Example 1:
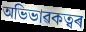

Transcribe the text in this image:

অভিভাৱকত্বৰ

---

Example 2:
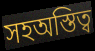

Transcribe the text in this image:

সহঅস্তিত্ব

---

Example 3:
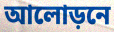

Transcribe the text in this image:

আলোড়নে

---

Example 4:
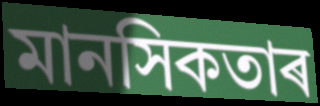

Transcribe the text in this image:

মানসিকতাৰ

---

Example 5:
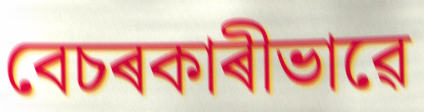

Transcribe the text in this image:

বেচৰকাৰীভাৱে